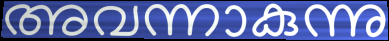
അവന്നാകുന്നു